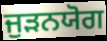
ਜੁੜਨਯੋਗ